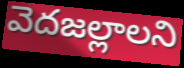
వెదజల్లాలని